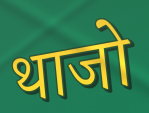
थाजो